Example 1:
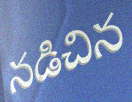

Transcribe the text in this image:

నడిచిన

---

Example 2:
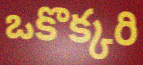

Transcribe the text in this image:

ఒకొక్కరి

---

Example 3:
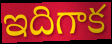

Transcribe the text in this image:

ఇదిగాక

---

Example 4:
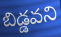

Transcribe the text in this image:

బిడ్డవని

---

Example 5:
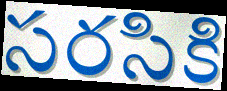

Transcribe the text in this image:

సరసికి